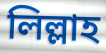
লিল্লাহ